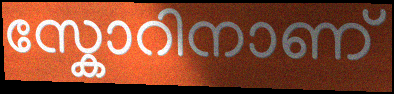
സ്കോറിനാണ്